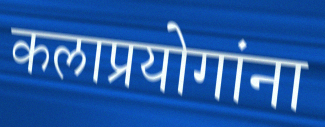
कलाप्रयोगांना